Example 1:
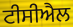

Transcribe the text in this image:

ਟੀਸੀਐਲ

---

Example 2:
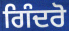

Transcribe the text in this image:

ਗਿੰਦਰੋ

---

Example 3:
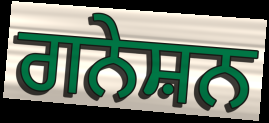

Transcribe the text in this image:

ਗਨੇਸ਼ਨ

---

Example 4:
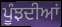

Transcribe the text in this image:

ਪੂੰਝਦੀਆਂ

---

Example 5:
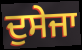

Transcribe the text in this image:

ਦੁਸੇਜਾ